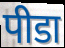
पीडा